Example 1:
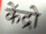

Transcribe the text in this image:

केंद्रो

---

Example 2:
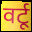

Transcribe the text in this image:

वर्टू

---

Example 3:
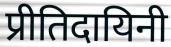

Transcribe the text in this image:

प्रीतिदायिनी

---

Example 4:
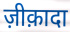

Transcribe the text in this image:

ज़ीक़ादा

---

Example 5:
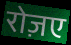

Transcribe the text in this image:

रोज़ए